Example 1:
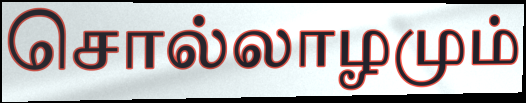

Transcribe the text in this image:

சொல்லாழமும்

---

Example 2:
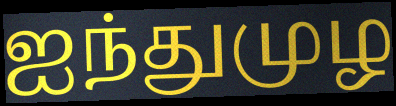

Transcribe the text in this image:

ஐந்துமுழ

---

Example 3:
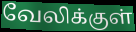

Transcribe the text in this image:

வேலிக்குள்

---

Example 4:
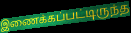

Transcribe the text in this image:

இணைக்கப்பட்டிருந்த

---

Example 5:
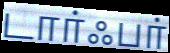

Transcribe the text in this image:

டார்ஃபர்